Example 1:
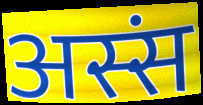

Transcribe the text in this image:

अस्सं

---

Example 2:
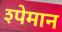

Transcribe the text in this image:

श्पेमान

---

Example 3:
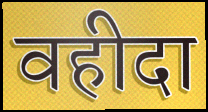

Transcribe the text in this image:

वहीदा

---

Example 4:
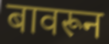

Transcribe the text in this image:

बावरून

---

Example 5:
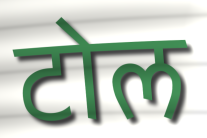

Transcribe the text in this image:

टोल